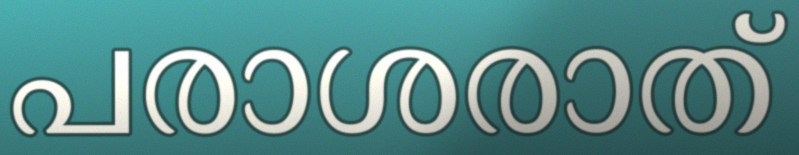
പരാശരാത്